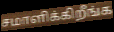
சமாளிக்கிறீங்க